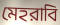
মেহরাবি